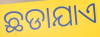
ଛଡାଯାଏ